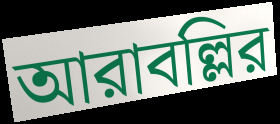
আরাবল্লির